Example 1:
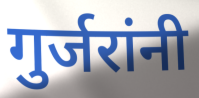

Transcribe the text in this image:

गुर्जरांनी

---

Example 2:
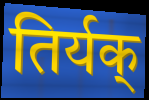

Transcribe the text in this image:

तिर्यक्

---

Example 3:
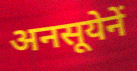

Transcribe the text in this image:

अनसूयेनें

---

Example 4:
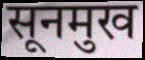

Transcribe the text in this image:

सूनमुख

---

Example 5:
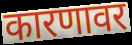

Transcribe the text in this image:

कारणावर